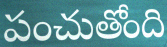
పంచుతోంది